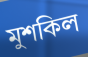
মুশকিল